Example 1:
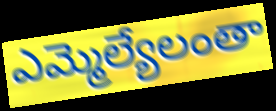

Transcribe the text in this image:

ఎమ్మెల్యేలంతా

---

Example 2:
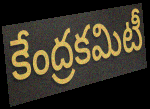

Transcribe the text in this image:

కేంద్రకమిటీ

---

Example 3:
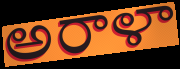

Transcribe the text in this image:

అరాళా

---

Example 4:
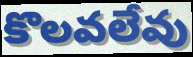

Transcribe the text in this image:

కొలవలేవు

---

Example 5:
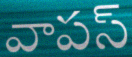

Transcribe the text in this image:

వాపస్